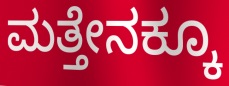
ಮತ್ತೇನಕ್ಕೂ